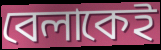
বেলাকেই